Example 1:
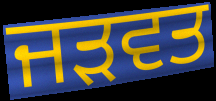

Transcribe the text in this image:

ਜੜਵਤ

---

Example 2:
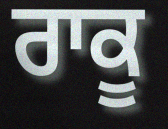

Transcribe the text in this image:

ਰਾਕੂ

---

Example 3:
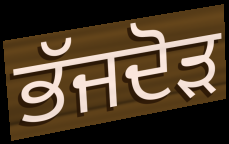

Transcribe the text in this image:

ਭੱਜਦੋੜ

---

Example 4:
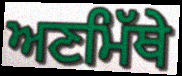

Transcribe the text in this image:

ਅਣਮਿੱਥੇ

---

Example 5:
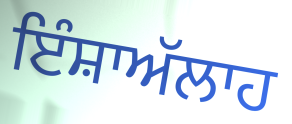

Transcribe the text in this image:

ਇੰਸ਼ਾਅੱਲਾਹ